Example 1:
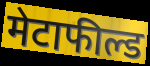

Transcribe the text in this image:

मेटाफील्ड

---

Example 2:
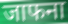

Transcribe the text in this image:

जाफना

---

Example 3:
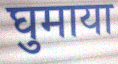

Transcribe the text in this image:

घुमाया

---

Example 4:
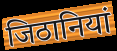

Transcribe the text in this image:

जिठानियां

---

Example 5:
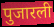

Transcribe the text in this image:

पुजारली